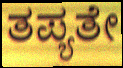
ತಪ್ಯತೇ